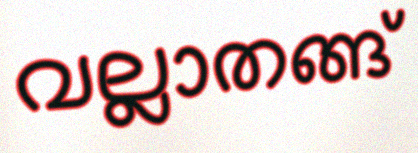
വല്ലാതങ്ങ്